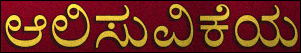
ಆಲಿಸುವಿಕೆಯ